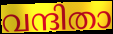
വന്ദിതാ